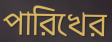
পারিখের